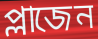
প্লাজেন